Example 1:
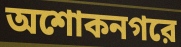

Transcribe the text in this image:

অশোকনগরে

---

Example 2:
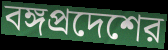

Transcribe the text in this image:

বঙ্গপ্রদেশের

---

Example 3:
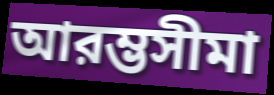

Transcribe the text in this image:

আরম্ভসীমা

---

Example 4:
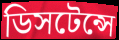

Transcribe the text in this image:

ডিসটেন্সে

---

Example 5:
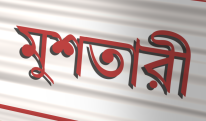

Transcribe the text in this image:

মুশতারী